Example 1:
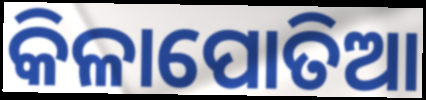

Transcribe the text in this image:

କିଳାପୋତିଆ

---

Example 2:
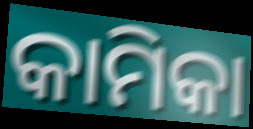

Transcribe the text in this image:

କାମିକା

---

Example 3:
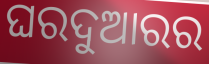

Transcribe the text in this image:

ଘରଦୁଆରର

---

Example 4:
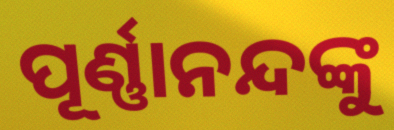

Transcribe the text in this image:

ପୂର୍ଣ୍ଣାନନ୍ଦଙ୍କୁ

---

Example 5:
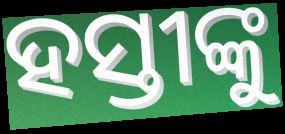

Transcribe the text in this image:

ହସ୍ତୀଙ୍କୁ